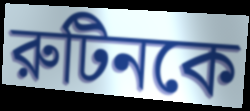
রুটিনকে